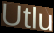
Utlu